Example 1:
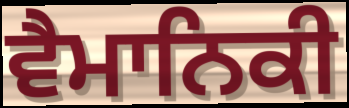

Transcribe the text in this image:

ਵੈਮਾਨਿਕੀ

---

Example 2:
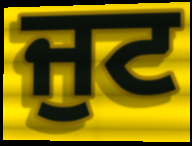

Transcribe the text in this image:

ਜੁਟ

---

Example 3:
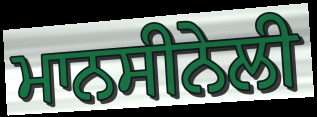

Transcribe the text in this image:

ਮਾਨਸੀਨੇਲੀ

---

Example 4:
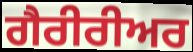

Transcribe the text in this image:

ਗੈਰੀਰੀਅਰ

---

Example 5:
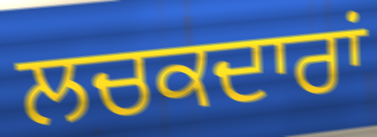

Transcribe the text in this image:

ਲਚਕਦਾਰਾਂ